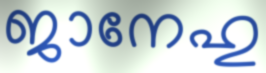
ജാനേഹു